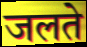
जलते